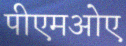
पीएमओए